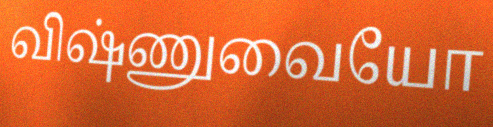
விஷ்ணுவையோ